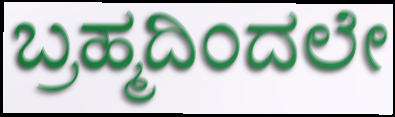
ಬ್ರಹ್ಮದಿಂದಲೇ